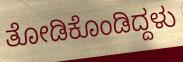
ತೋಡಿಕೊಂಡಿದ್ದಳು